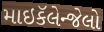
માઇકૅલેન્જેલો